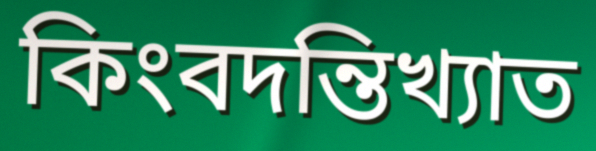
কিংবদন্তিখ্যাত